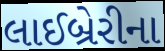
લાઈબ્રેરીના